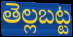
తెల్లబట్ట